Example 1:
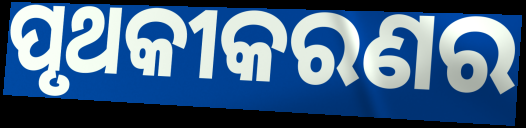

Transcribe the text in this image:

ପୃଥକୀକରଣର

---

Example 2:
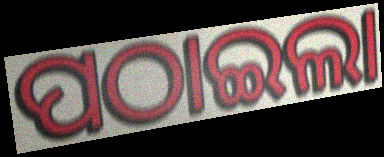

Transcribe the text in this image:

ପଠାଇଲା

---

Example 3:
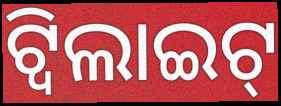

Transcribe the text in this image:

ଟ୍ୱିଲାଇଟ୍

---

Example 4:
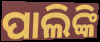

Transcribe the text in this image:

ପାଲିଙ୍କି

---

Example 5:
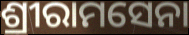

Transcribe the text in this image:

ଶ୍ରୀରାମସେନା